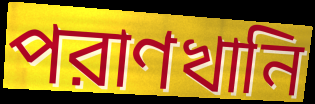
পরাণখানি